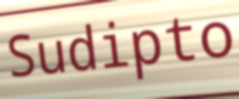
Sudipto